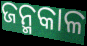
ଜନ୍ମକାଳ